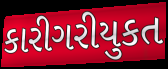
કારીગરીયુકત